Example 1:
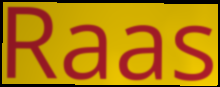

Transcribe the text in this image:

Raas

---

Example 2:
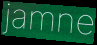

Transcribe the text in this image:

jamne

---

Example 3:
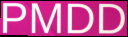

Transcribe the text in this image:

PMDD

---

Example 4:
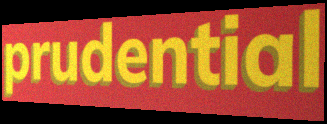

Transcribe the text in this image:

prudential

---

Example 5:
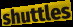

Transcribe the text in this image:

shuttles